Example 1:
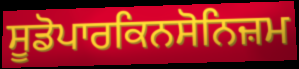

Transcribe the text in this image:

ਸੂਡੋਪਾਰਕਿਨਸੋਨਿਜ਼ਮ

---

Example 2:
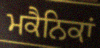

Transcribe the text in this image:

ਮਕੈਨਿਕਾਂ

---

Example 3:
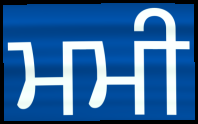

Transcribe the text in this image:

ਮਮੀ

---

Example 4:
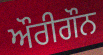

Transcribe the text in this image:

ਔਰੀਗੌਨ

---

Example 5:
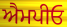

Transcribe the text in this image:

ਐਮਪੀਓ